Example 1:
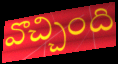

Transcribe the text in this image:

వొచ్చింది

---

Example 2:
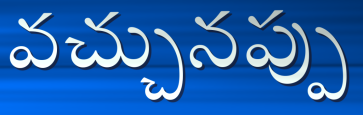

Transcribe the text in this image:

వచ్చునప్పు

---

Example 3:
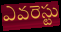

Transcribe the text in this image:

ఎవరెస్టు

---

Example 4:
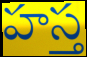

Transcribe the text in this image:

హస్త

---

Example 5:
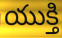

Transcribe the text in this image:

యుక్తి